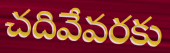
చదివేవరకు